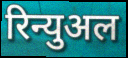
रिन्युअल